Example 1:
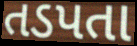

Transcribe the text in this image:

તડપતા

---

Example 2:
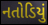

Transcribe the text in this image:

નતોડિયું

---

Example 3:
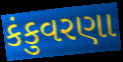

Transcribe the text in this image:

કંકુવરણા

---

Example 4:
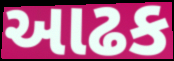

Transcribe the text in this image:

આઢક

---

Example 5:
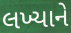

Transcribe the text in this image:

લખ્યાને